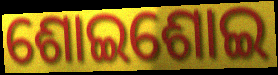
ଶୋଇଶୋଇ